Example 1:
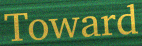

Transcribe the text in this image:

Toward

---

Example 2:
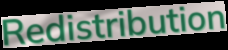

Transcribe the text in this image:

Redistribution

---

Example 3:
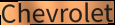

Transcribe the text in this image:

Chevrolet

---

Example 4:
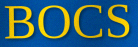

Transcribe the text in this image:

BOCS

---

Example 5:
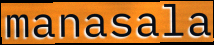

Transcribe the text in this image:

manasala